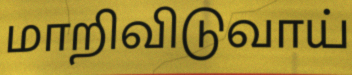
மாறிவிடுவாய்